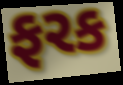
ફરક